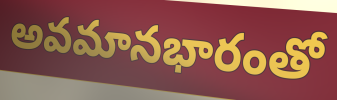
అవమానభారంతో